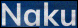
Naku